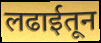
लढाईतून